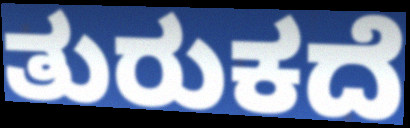
ತುರುಕದೆ